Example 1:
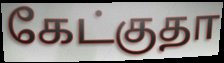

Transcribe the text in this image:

கேட்குதா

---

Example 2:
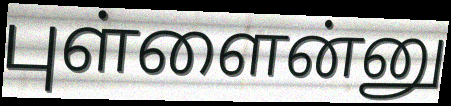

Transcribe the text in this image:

புள்ளைன்னு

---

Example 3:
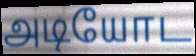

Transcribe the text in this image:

அடியோட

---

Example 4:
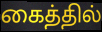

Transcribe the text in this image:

கைத்தில்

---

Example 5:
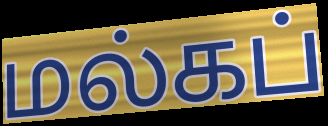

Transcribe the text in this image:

மல்கப்